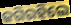
ଜଗିରହିଲେ